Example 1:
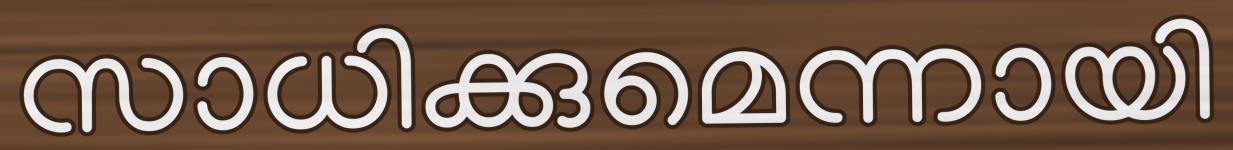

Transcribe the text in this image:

സാധിക്കുമെന്നായി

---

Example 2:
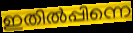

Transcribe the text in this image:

ഇതിൽപ്പിന്നെ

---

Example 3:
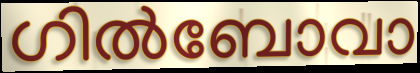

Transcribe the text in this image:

ഗിൽബോവാ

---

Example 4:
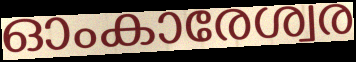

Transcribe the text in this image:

ഓംകാരേശ്വര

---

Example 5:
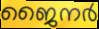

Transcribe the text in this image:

ജൈനർ